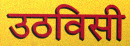
उठविसी